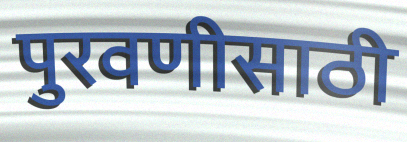
पुरवणीसाठी